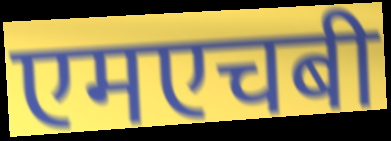
एमएचबी